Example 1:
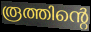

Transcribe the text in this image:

രൂത്തിന്റെ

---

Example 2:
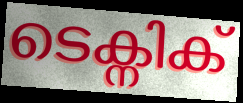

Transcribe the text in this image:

ടെക്നിക്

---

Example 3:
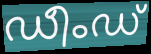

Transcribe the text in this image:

ഡീംഡ്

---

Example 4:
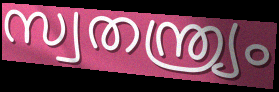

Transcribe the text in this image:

സ്വതന്ത്ര്യം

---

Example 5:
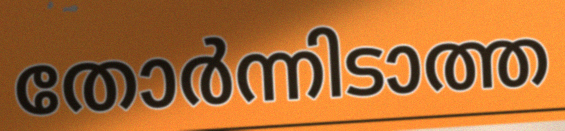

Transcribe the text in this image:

തോർന്നിടാത്ത